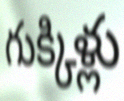
గుక్కిళ్లు